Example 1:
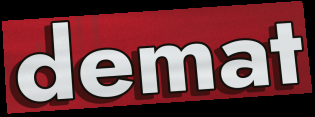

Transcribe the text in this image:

demat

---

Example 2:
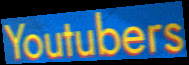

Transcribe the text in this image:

Youtubers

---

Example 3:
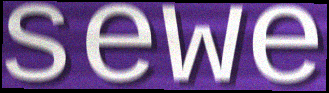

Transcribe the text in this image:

sewe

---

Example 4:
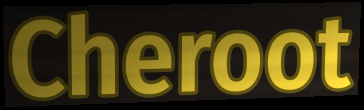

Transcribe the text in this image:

Cheroot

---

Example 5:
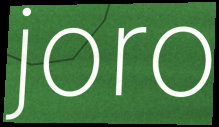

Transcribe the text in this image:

joro